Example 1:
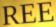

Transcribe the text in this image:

REE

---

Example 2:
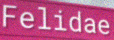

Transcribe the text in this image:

Felidae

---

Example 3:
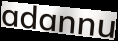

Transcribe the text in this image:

adannu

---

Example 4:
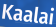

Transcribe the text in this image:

Kaalai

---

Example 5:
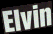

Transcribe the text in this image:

Elvin